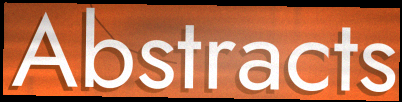
Abstracts